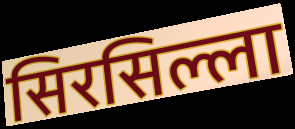
सिरसिल्ला